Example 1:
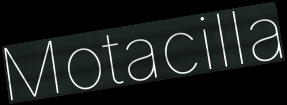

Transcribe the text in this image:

Motacilla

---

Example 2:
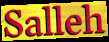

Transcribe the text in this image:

Salleh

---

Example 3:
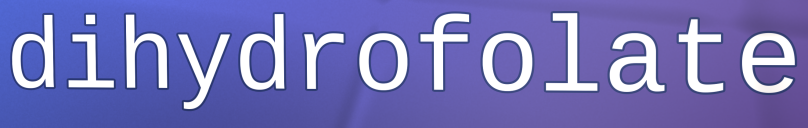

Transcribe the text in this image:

dihydrofolate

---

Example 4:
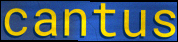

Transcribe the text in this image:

cantus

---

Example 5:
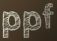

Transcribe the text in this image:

ppf